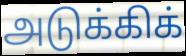
அடுக்கிக்